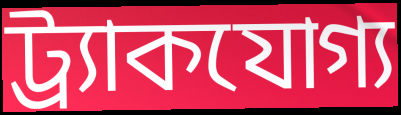
ট্র্যাকযোগ্য